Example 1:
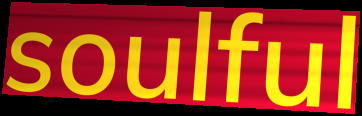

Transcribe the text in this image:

soulful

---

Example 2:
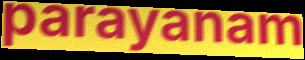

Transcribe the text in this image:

parayanam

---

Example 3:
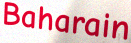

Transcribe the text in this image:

Baharain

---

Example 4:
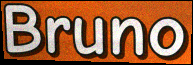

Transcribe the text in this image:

Bruno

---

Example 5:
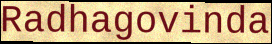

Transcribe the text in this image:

Radhagovinda